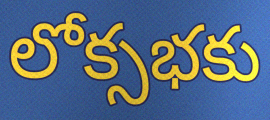
లోక్సభకు